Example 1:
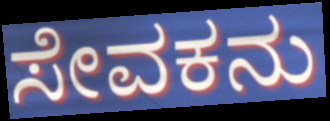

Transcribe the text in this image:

ಸೇವಕನು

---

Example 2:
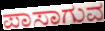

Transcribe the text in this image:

ಪಾಸಾಗುವ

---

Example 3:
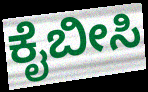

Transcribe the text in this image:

ಕೈಬೀಸಿ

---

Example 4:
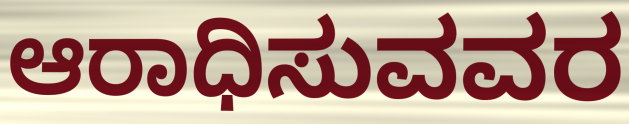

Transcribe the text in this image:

ಆರಾಧಿಸುವವರ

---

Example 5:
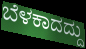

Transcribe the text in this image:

ಬೆಳಕಾದದ್ದು